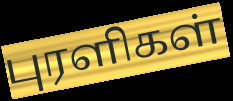
புரளிகள்